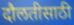
दौलतीसाठी